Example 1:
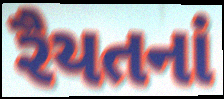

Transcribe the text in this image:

રૈયતનાં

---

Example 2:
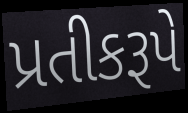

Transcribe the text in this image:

પ્રતીકરૂપે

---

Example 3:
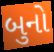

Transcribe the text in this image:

બુનો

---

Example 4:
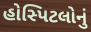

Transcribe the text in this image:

હોસ્પિટલોનું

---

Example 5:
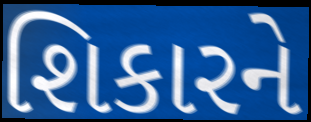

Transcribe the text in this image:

શિકારને